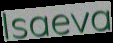
Isaeva